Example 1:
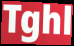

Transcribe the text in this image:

Tghl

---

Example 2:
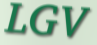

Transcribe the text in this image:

LGV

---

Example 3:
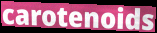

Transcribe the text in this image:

carotenoids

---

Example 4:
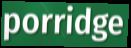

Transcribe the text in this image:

porridge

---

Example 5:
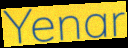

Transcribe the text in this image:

Yenar